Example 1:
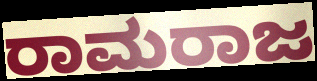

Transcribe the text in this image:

ರಾಮರಾಜ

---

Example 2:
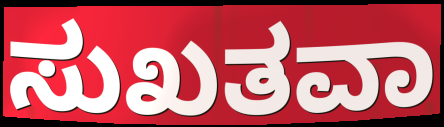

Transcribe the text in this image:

ಸುಖತವಾ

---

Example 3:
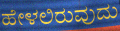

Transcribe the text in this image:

ಹೇಳಲಿರುವುದು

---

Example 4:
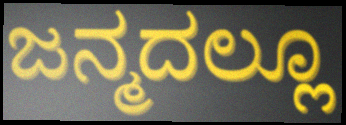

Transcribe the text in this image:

ಜನ್ಮದಲ್ಲೂ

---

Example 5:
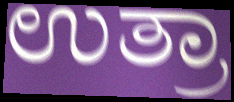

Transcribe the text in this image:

ಉತ್ರಾ